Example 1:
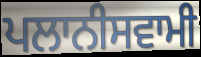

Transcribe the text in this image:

ਪਲਾਨੀਸਵਾਮੀ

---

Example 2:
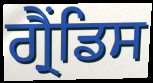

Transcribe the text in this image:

ਗ੍ਰੈਂਡਿਸ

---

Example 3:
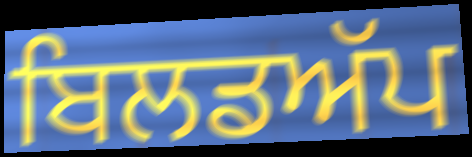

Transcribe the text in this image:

ਬਿਲਡਅੱਪ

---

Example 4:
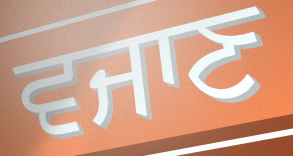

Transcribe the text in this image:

ਵਜਾਣ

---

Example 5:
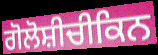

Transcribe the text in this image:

ਗੋਲੋਸ਼ੀਚੀਕਿਨ